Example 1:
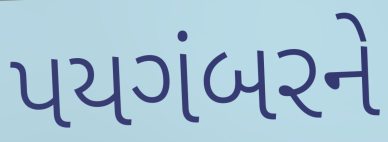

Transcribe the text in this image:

પયગંબરને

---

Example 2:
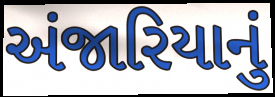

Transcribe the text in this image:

અંજારિયાનું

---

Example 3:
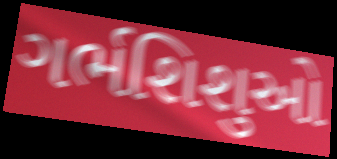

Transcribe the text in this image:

ગર્ભશિશુઓ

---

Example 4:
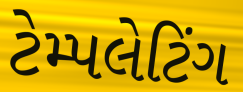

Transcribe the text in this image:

ટેમ્પલેટિંગ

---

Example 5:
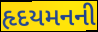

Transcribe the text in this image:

હૃદયમનની